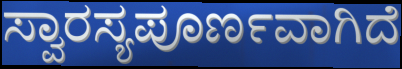
ಸ್ವಾರಸ್ಯಪೂರ್ಣವಾಗಿದೆ